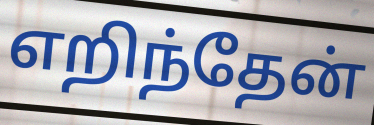
எறிந்தேன்